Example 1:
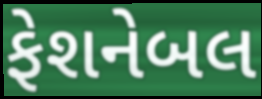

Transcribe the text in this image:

ફેશનેબલ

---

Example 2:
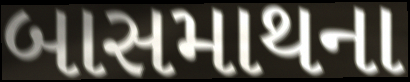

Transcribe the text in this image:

બાસમાથના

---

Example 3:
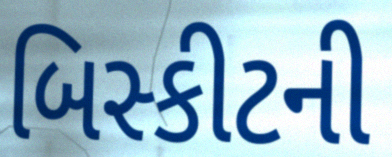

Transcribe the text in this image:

બિસ્કીટની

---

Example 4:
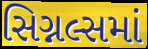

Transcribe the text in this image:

સિગ્નલ્સમાં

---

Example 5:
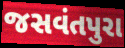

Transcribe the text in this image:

જસવંતપુરા